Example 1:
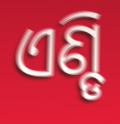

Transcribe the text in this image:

ଏଣ୍ଡି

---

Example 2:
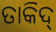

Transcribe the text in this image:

ତାକିଦ୍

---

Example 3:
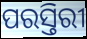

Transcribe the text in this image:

ପରସ୍ତିରୀ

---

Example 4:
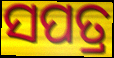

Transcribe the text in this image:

ସପତ୍ର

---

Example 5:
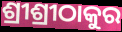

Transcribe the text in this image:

ଶ୍ରୀଶ୍ରୀଠାକୁର